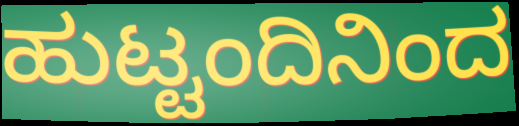
ಹುಟ್ಟಂದಿನಿಂದ